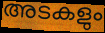
അടകളും